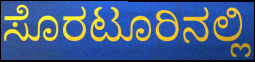
ಸೊರಟೂರಿನಲ್ಲಿ